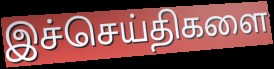
இச்செய்திகளை